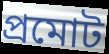
প্রমোট